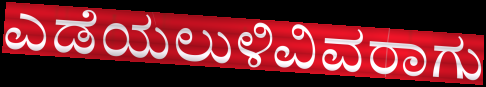
ಎಡೆಯಲುಳಿವಿವರಾಗು